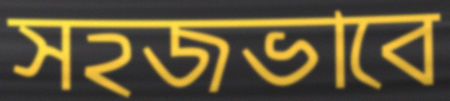
সহজভাবে